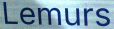
Lemurs